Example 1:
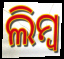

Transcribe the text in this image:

ଲିମ୍ବ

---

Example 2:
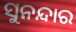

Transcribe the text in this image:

ସୁନନ୍ଦାର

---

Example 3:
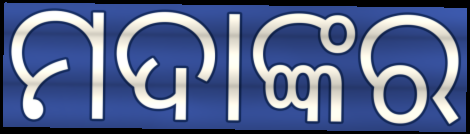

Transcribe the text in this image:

ମଦାଙ୍କର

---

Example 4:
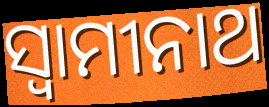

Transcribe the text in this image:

ସ୍ୱାମୀନାଥ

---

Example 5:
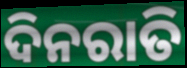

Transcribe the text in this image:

ଦିନରାତି